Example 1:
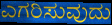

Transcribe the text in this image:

ಎಗರಿಸುವುದು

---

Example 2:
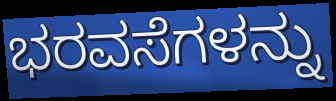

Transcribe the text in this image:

ಭರವಸೆಗಳನ್ನು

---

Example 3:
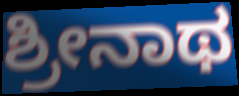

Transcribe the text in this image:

ಶ್ರೀನಾಥ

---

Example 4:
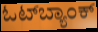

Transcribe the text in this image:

ಓಟ್‌ಬ್ಯಾಂಕ್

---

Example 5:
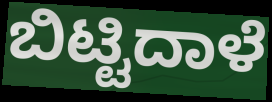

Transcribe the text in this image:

ಬಿಟ್ಟಿದಾಳೆ